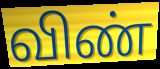
விண்